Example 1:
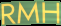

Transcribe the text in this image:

RMH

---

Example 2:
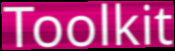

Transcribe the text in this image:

Toolkit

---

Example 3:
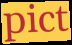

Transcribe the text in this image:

pict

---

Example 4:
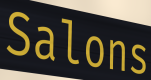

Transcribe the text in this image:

Salons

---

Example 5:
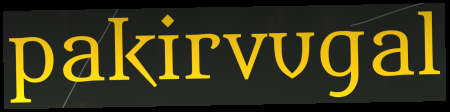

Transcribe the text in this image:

pakirvugal